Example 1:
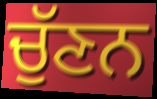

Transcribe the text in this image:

ਚੁੱਣਨ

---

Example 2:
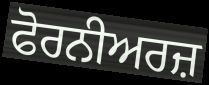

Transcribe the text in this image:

ਫੋਰਨੀਅਰਜ਼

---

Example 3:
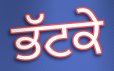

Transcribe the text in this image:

ਭੱਟਕੇ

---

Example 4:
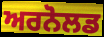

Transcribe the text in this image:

ਅਰਨੋਲਡ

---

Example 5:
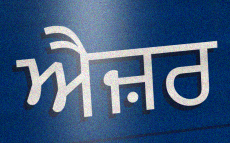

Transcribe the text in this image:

ਐਜ਼ਰ